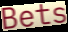
Bets